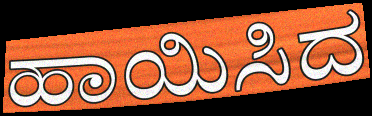
ಹಾಯಿಸಿದ